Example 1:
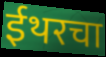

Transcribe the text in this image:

ईथरचा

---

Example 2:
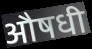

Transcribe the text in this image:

औषधी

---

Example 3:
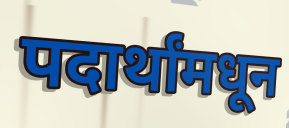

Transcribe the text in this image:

पदार्थांमधून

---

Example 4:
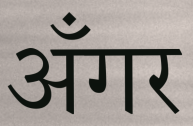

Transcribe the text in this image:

अँगर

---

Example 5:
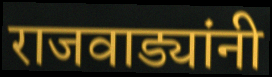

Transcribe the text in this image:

राजवाड्यांनी